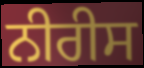
ਨੀਰੀਸ